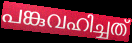
പങ്കുവഹിച്ചത്